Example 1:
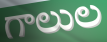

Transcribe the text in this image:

గాలుల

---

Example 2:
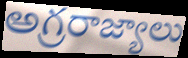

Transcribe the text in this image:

అగ్రరాజ్యాలు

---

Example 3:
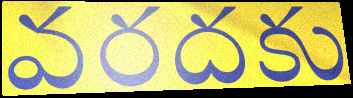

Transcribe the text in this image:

వరదకు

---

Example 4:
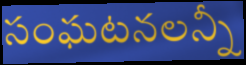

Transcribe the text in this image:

సంఘటనలన్నీ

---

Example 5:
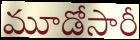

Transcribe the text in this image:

మూడోసారీ